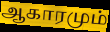
ஆகாரமும்